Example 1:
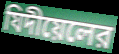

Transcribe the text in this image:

যিদীয়েলের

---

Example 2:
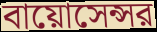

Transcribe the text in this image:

বায়োসেন্সর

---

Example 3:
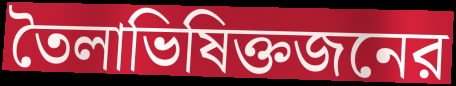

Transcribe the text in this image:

তৈলাভিষিক্তজনের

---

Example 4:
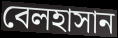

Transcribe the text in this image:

বেলহাসান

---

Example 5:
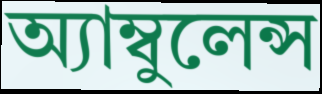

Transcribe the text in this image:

অ্যাম্বুলেন্স